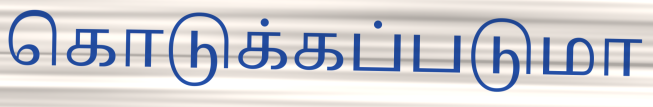
கொடுக்கப்படுமா